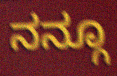
ನನ್ಗೂ